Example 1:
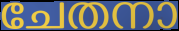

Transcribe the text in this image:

ചേതനാ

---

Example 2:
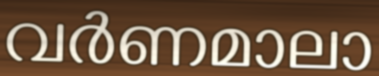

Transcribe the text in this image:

വർണമാലാ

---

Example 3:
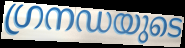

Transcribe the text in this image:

ഗ്രനഡയുടെ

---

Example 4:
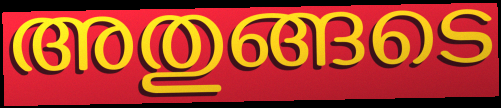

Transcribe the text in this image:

അതുങ്ങടെ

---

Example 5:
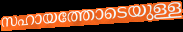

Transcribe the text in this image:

സഹായത്തോടെയുള്ള